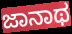
ಜಾನಾಥ